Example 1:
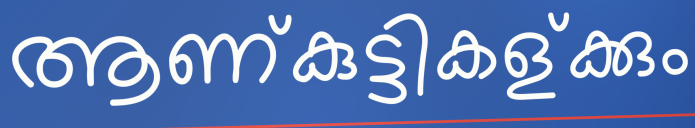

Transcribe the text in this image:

ആണ്കുട്ടികള്ക്കും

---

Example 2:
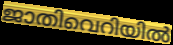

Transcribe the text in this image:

ജാതിവെറിയിൽ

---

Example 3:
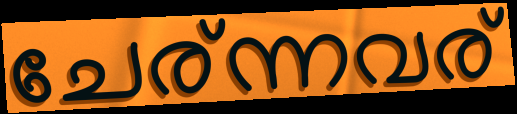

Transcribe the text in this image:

ചേര്ന്നവര്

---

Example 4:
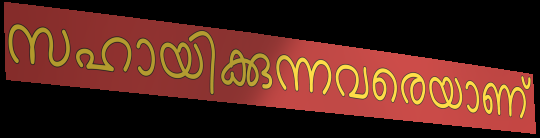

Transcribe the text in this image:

സഹായിക്കുന്നവരെയാണ്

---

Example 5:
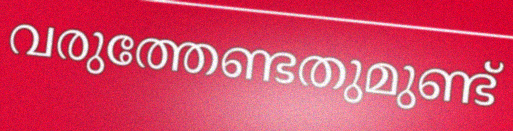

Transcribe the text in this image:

വരുത്തേണ്ടതുമുണ്ട്